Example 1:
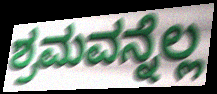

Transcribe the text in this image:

ಶ್ರಮವನ್ನೆಲ್ಲ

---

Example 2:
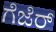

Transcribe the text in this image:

ಗೆಜೆರ್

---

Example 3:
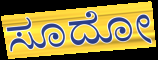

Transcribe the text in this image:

ಸೂದೋ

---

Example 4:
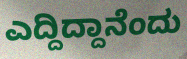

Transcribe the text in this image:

ಎದ್ದಿದ್ದಾನೆಂದು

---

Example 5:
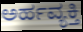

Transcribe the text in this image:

ಅರ್ಹವ್ಯಕ್ತಿ